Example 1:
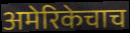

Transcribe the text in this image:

अमेरिकेचाच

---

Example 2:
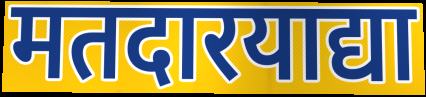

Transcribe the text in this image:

मतदारयाद्या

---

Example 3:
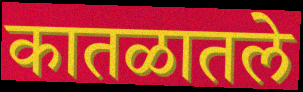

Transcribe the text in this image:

कातळातले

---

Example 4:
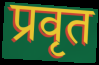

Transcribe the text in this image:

प्रवृत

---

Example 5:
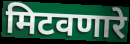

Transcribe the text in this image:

मिटवणारे